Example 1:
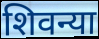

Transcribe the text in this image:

शिवन्या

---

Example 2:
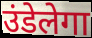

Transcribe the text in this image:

उंडेलेगा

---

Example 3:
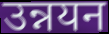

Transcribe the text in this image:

उन्नयन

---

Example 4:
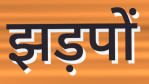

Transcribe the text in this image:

झड़पों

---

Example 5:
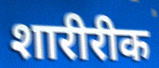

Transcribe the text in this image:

शारीरीक